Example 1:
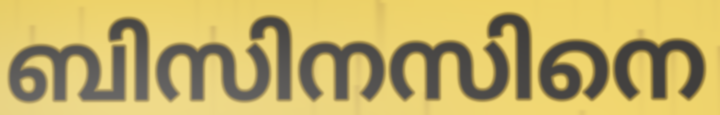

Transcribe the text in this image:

ബിസിനസിനെ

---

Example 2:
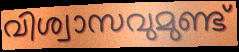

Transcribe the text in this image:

വിശ്വാസവുമുണ്ട്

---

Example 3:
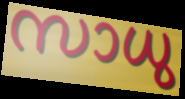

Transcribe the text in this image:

സാധു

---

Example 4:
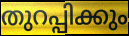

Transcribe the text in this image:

തുറപ്പിക്കും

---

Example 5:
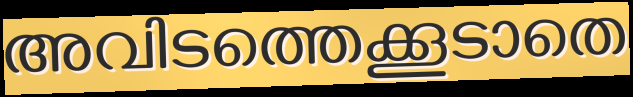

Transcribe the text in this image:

അവിടത്തെക്കൂടാതെ